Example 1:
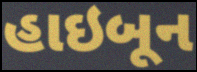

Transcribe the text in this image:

હાઇબૂન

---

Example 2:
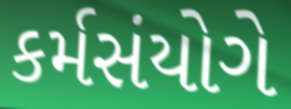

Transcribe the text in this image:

કર્મસંયોગે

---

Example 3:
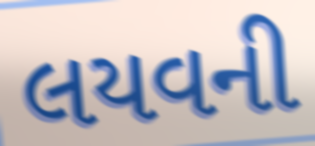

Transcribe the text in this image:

લયવની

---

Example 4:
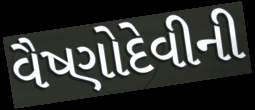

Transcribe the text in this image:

વૈષ્ણોદેવીની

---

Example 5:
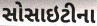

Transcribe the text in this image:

સોસાઇટીના